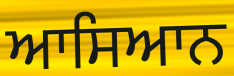
ਆਸਿਆਨ